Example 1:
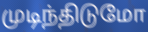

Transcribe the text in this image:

முடிந்திடுமோ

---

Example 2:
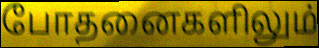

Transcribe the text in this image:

போதனைகளிலும்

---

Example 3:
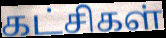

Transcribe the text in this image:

கட்சிகள்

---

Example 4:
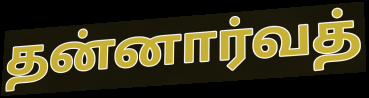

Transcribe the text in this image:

தன்னார்வத்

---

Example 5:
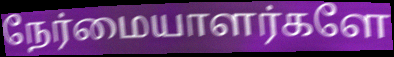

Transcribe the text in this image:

நேர்மையாளர்களே